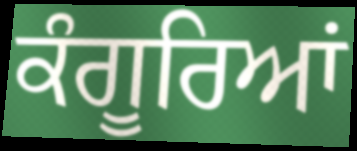
ਕੰਗੂਰਿਆਂ